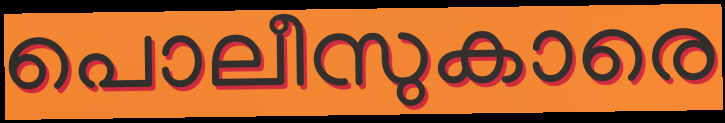
പൊലീസുകാരെ